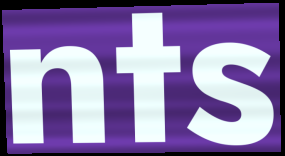
nts